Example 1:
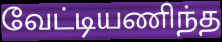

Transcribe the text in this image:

வேட்டியணிந்த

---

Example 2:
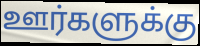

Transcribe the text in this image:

ஊர்களுக்கு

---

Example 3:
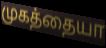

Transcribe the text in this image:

முகத்தையா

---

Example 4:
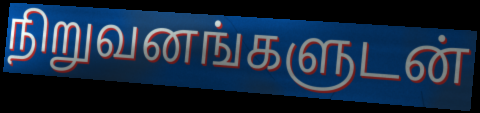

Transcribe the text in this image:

நிறுவனங்களுடன்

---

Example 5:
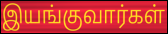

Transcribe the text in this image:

இயங்குவார்கள்